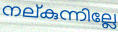
നല്കുന്നില്ലേ